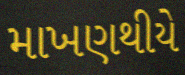
માખણથીયે